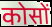
कोसों